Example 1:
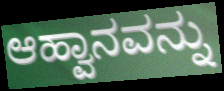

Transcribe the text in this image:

ಆಹ್ವಾನವನ್ನು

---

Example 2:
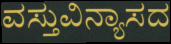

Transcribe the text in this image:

ವಸ್ತುವಿನ್ಯಾಸದ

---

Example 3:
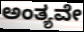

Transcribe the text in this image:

ಅಂತ್ಯವೇ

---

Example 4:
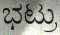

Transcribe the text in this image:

ಭಟ್ರು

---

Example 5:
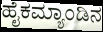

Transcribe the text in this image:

ಹೈಕಮ್ಯಾಂಡಿನ